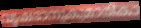
വൃഷഭാനുകുമാരികാ